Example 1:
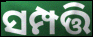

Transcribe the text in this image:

ସମ୍ପତ୍ତି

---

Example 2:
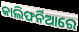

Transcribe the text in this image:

କାଲିଫର୍ନିଆରେ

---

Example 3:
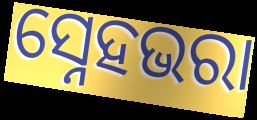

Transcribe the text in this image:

ସ୍ନେହଭରା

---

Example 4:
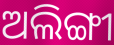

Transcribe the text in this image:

ଅଲିଙ୍ଗୀ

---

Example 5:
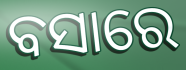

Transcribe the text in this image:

ବସାରେ